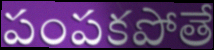
పంపకపోతే